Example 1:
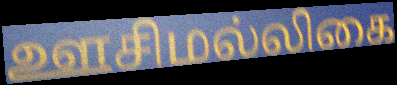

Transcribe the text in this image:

ஊசிமல்லிகை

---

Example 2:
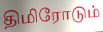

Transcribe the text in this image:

திமிரோடும்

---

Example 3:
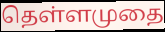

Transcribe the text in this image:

தெள்ளமுதை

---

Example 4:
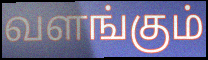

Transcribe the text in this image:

வளங்கும்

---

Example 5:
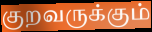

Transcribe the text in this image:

குறவருக்கும்